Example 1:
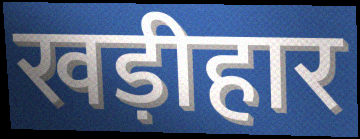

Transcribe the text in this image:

खड़ीहार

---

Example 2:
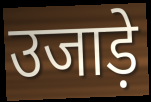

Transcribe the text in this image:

उजाड़े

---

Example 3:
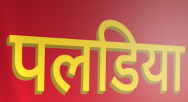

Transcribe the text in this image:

पलडिया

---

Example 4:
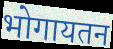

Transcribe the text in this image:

भोगायतन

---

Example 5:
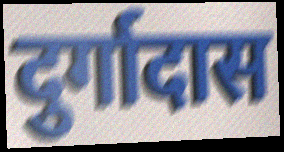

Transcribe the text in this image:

दुर्गादास